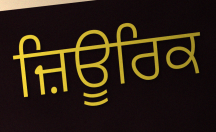
ਜ਼ਿਊਰਿਕ